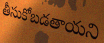
తీసుకోబడతాయని